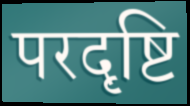
परदृष्टि